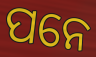
ପନେ